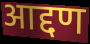
आद्दण